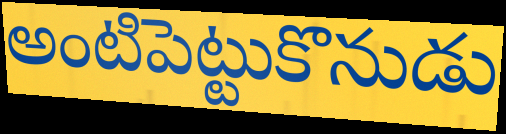
అంటిపెట్టుకొనుడు